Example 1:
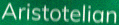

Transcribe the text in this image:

Aristotelian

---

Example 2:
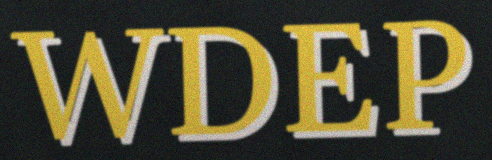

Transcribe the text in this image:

WDEP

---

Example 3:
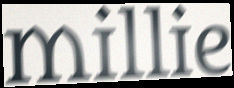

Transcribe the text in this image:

millie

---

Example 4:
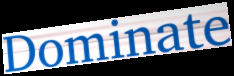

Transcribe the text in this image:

Dominate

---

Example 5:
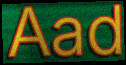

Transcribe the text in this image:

Aad